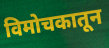
विमोचकातून